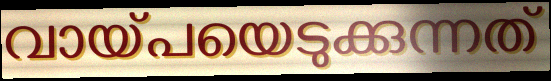
വായ്പയെടുക്കുന്നത്